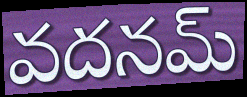
వదనమ్